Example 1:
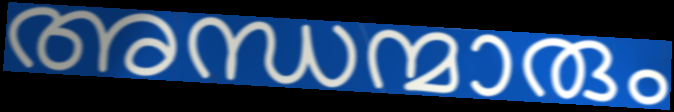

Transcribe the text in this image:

അന്ധന്മാരും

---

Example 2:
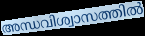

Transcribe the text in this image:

അന്ധവിശ്വാസത്തിൽ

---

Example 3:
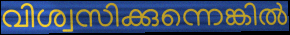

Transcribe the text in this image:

വിശ്വസിക്കുന്നെങ്കിൽ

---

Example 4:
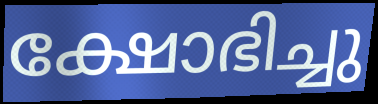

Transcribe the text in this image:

ക്ഷോഭിച്ചു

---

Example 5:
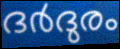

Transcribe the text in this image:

ദർദുരം